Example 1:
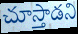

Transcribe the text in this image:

చూస్తాడని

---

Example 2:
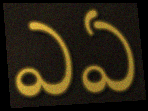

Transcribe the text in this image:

ఎఏ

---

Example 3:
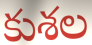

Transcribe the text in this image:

కుశల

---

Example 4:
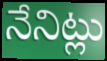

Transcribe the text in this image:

నేనిట్లు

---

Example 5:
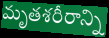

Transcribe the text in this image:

మృతశరీరాన్ని